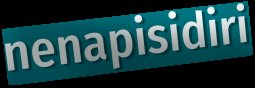
nenapisidiri